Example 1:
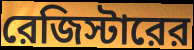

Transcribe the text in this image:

রেজিস্টারের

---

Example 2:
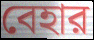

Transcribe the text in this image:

বেহার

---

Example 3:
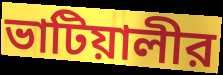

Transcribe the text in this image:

ভাটিয়ালীর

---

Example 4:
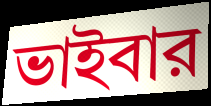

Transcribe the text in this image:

ভাইবার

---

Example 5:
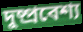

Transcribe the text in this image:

দুষ্প্রবেশ্য